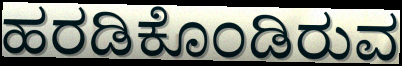
ಹರಡಿಕೊಂಡಿರುವ